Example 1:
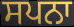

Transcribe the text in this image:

ਸਪਨਾ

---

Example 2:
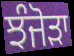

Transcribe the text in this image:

ਝੰਜੋੜਾ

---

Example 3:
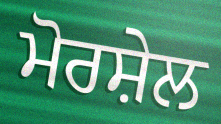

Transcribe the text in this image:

ਮੋਰਸ਼ੇਲ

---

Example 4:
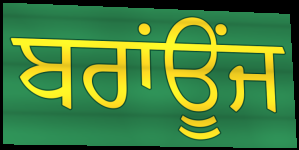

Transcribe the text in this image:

ਬਰਾਂਊਂਜ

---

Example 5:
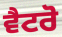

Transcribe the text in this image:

ਵੈਟਰੋ